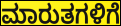
ಮಾರುತಗಳಿಗೆ